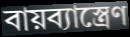
বায়ব্যাস্ত্রেণ